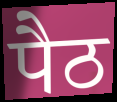
पैठ